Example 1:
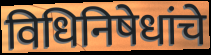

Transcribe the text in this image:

विधिनिषेधांचे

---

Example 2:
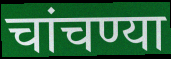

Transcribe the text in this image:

चांचण्या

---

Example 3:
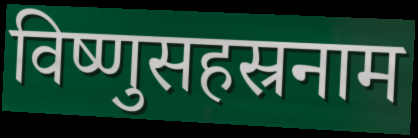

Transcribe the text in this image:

विष्णुसहस्रनाम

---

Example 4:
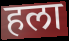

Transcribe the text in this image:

हला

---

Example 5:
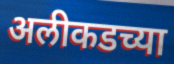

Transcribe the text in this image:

अलीकडच्या